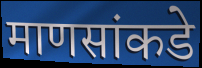
माणसांकडे